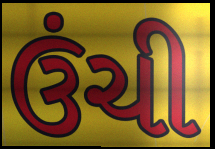
ઉંચી